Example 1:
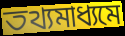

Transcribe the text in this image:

তথ্যমাধ্যমে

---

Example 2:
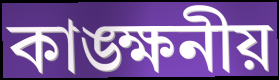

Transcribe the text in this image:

কাঙ্ক্ষনীয়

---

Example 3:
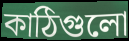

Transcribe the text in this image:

কাঠিগুলো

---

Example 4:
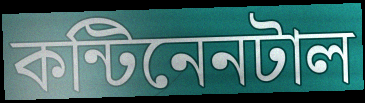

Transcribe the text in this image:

কন্টিনেনটাল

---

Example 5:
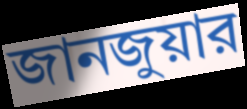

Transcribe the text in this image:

জানজুয়ার